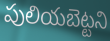
పులియబెట్టని